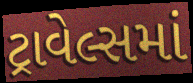
ટ્રાવેલ્સમાં